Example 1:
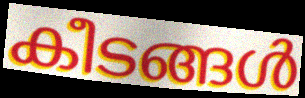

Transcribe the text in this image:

കീടങ്ങൾ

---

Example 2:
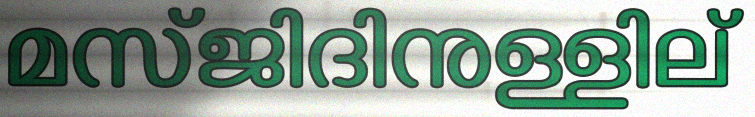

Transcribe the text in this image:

മസ്ജിദിനുള്ളില്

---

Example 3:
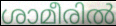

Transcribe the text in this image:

ശാമീരിൽ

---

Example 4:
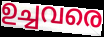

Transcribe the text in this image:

ഉച്ചവരെ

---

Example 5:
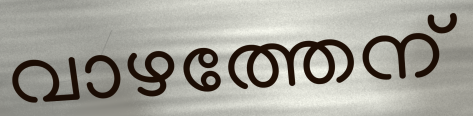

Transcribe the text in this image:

വാഴത്തേന്